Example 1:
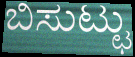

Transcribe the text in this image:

ಬಿಸುಟ್ಟು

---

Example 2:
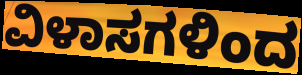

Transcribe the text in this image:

ವಿಳಾಸಗಳಿಂದ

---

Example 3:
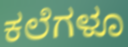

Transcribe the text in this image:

ಕಲೆಗಳೂ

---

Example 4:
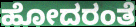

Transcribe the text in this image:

ಹೋದರಂತೆ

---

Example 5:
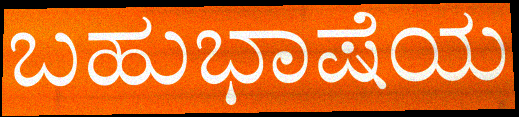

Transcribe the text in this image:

ಬಹುಭಾಷೆಯ